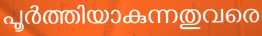
പൂർത്തിയാകുന്നതുവരെ